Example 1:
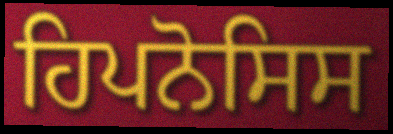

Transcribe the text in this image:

ਹਿਪਨੋਸਿਸ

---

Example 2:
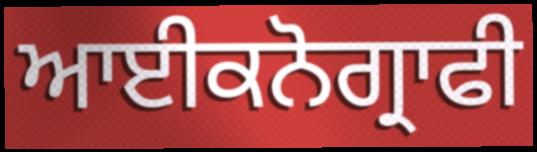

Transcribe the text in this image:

ਆਈਕਨੋਗ੍ਰਾਫੀ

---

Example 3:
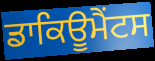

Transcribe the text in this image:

ਡਾਕਿਊਮੈਂਟਸ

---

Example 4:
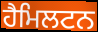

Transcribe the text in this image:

ਹੈਮਿਲਟਨ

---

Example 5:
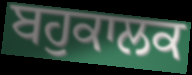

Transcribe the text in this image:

ਬਹੁਕਾਲਕ